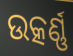
ଉତ୍କର୍ଣ୍ଣ